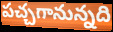
పచ్చగానున్నది